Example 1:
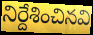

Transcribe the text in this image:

నిర్దేశించినవి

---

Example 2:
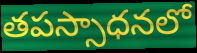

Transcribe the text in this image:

తపస్సాధనలో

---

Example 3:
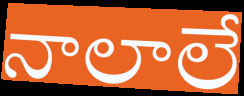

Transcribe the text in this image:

నాలాలే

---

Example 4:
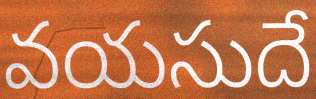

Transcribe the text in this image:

వయసుదే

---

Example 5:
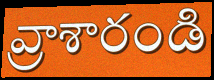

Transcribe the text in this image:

వ్రాశారండి